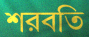
শরবতি